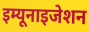
इम्यूनाइजेशन